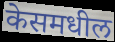
केसमधील